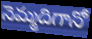
నెమ్మదిగానో